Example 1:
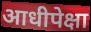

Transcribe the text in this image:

आधीपेक्षा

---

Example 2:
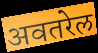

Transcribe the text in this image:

अवतरेल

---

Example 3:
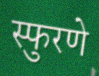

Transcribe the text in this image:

स्फुरणे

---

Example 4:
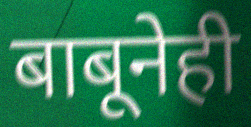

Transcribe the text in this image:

बाबूनेही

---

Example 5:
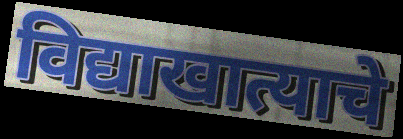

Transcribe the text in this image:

विद्याखात्याचे